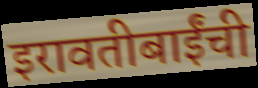
इरावतीबाईंची